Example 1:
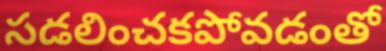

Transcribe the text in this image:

సడలించకపోవడంతో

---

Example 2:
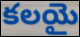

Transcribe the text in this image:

కలయై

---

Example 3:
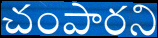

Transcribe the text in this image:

చంపారని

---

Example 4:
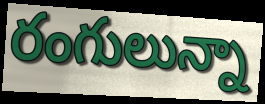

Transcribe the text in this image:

రంగులున్నా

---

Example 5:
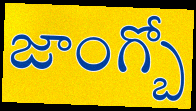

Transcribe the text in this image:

జాంగ్బో